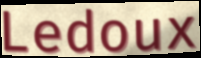
Ledoux